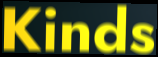
Kinds